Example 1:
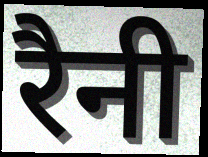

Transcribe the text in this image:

रैनी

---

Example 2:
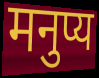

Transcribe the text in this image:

मनुप्य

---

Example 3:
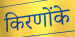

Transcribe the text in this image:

किरणोंके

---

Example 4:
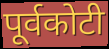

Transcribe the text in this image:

पूर्वकोटी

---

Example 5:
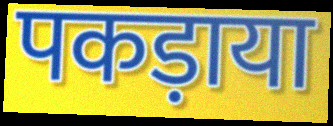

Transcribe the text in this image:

पकड़ाया